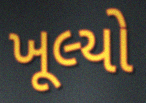
ખૂલ્યો